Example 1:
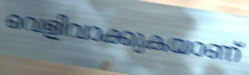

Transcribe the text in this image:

വെളിവാക്കുകയാണ്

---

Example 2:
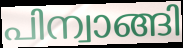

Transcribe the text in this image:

പിന്വാങ്ങി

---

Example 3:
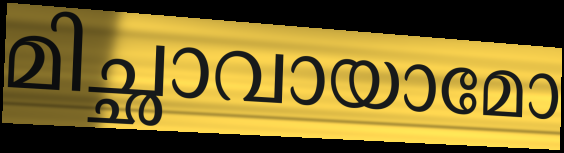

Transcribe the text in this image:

മിച്ഛാവായാമോ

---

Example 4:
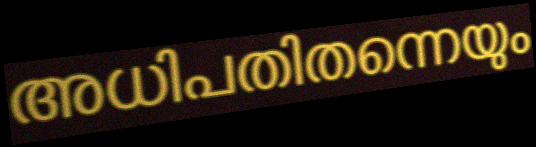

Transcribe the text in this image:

അധിപതിതന്നെയും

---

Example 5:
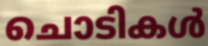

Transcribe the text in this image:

ചൊടികൾ